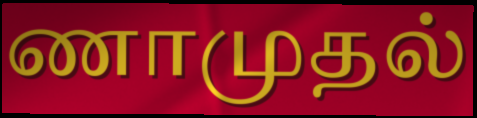
ணாமுதல்